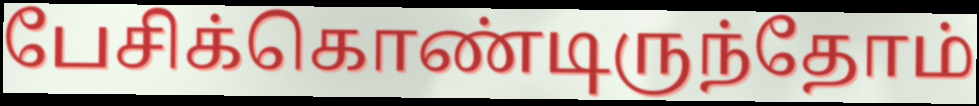
பேசிக்கொண்டிருந்தோம்